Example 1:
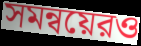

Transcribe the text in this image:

সমন্বয়েরও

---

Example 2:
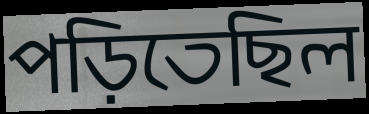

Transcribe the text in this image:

পড়িতেছিল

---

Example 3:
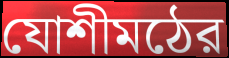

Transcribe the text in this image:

যোশীমঠের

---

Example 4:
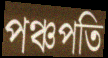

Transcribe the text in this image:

পঞ্চপতি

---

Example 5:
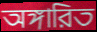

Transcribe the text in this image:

অঙ্গারিত